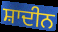
ਸ਼ਾਦੀਨ